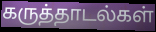
கருத்தாடல்கள்